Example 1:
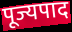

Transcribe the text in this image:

पूज्यपाद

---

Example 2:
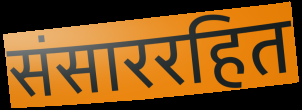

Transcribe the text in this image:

संसाररहित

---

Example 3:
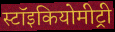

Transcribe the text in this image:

स्टॉइकियोमीट्री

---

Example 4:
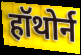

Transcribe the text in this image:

हॉथोर्न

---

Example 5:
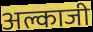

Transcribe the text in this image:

अल्काजी